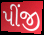
પીંજી